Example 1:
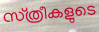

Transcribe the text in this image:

സ്‌ത്രീകളുടെ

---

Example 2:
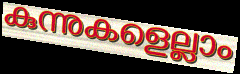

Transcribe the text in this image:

കുന്നുകളെല്ലാം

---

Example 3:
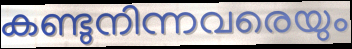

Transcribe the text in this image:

കണ്ടുനിന്നവരെയും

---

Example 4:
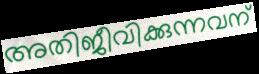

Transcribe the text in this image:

അതിജീവിക്കുന്നവന്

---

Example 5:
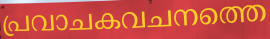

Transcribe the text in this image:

പ്രവാചകവചനത്തെ